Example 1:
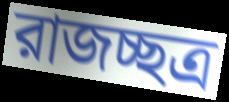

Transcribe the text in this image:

রাজচ্ছত্র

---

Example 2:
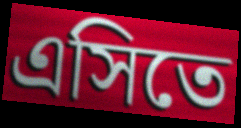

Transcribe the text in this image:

এসিতে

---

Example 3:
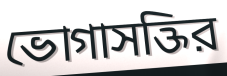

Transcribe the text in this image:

ভোগাসক্তির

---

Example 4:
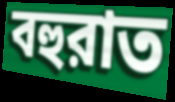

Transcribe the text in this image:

বহুরাত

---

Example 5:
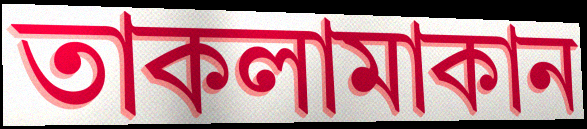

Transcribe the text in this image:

তাকলামাকান